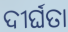
ଦୀର୍ଘତା